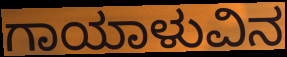
ಗಾಯಾಳುವಿನ